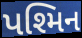
પશ્મિન